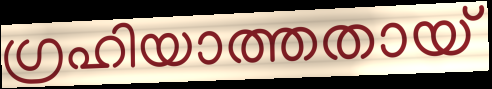
ഗ്രഹിയാത്തതായ്